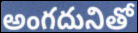
అంగదునితో